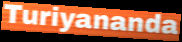
Turiyananda